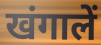
खंगालें